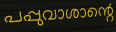
പപ്പുവാശാന്റെ